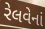
રેલવેનાં